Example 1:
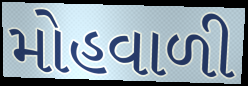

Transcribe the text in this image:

મોહવાળી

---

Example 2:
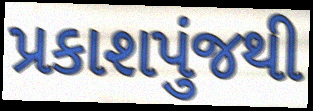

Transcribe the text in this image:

પ્રકાશપુંજથી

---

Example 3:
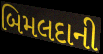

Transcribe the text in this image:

બિમલદાની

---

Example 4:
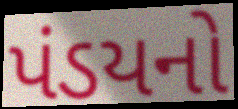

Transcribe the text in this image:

પંડયનો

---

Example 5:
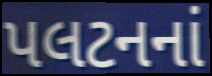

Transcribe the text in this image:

પલટનનાં